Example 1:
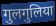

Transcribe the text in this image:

गुलगुलिया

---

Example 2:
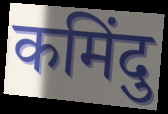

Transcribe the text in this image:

कमिंदु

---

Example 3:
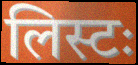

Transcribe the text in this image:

लिस्टः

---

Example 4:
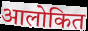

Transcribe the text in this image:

आलोकित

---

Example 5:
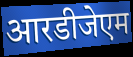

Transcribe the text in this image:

आरडीजेएम